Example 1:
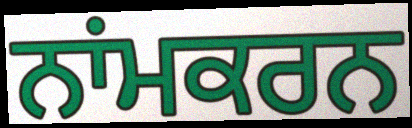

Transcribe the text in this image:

ਨਾਂਮਕਰਨ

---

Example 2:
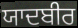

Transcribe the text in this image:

ਯਾਦਬੀਰ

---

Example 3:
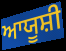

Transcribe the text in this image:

ਆਯੂਸ਼ੀ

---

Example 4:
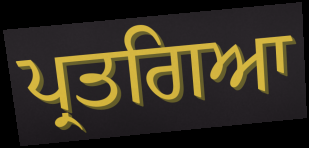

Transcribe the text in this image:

ਪ੍ਰਤਗਿਆ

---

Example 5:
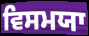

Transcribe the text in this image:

ਵਿਸਮਯਾ